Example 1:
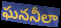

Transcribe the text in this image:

ఘననీలా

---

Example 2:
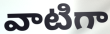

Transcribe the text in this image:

వాటిగా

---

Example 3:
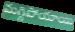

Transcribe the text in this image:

మగ్గిపోయాయి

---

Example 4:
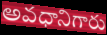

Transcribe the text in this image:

అవధానిగారు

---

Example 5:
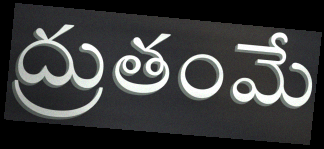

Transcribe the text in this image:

ద్రుతంమే